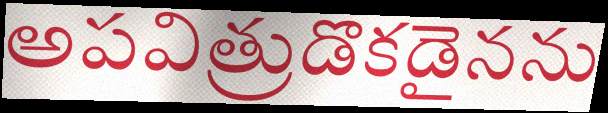
అపవిత్రుడొకడైనను